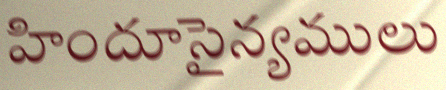
హిందూసైన్యములు